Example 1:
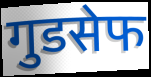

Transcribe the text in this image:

गुडसेफ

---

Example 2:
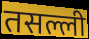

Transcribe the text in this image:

तसल्‍ली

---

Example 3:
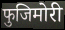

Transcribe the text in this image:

फुजिमोरी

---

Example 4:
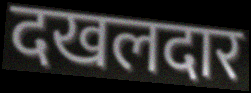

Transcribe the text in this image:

दखलदार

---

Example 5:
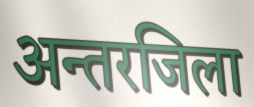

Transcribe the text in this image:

अन्तरजिला